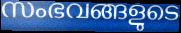
സംഭവങ്ങളുടെ